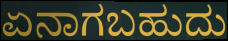
ಏನಾಗಬಹುದು